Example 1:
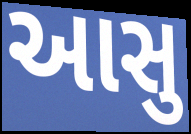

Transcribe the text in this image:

આસુ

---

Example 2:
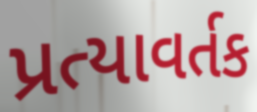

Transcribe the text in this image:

પ્રત્યાવર્તક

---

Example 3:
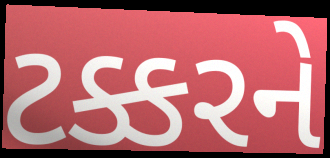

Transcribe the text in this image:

ટક્કરને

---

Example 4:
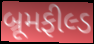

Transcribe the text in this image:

બ્રૂમફીલ્ડ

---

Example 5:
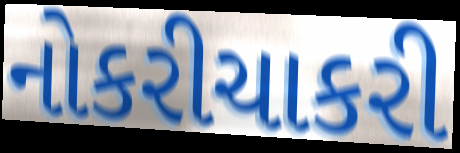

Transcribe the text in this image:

નોકરીચાકરી